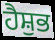
ਹੈਸ਼ੁਭ